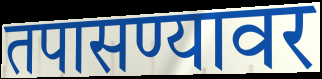
तपासण्यावर